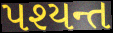
પશ્યન્ત